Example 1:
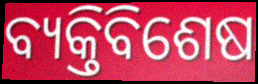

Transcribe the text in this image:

ବ୍ୟକ୍ତିବିଶେଷ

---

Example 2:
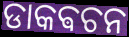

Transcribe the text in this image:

ଡାକଵଚନ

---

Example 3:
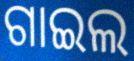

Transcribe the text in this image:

ଗାଇଲ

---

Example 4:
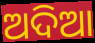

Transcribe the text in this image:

ଅଦିଆ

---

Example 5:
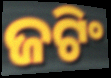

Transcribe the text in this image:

ଜଟିଂ